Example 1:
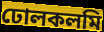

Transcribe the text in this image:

ঢোলকলমি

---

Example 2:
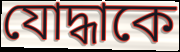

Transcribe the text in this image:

যোদ্ধাকে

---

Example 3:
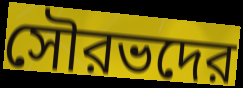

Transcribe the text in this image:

সৌরভদের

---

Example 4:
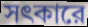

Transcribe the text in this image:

সৎকারে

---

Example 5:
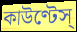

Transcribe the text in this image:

কাউণ্টেস্